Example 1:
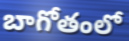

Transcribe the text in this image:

బాగోతంలో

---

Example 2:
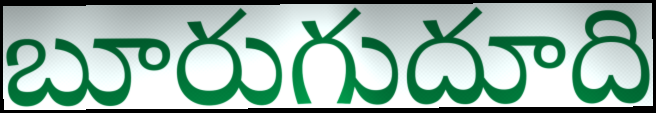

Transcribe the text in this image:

బూరుగుదూది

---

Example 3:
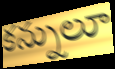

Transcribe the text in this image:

కన్నులూ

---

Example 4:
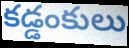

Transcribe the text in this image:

కడ్డంకులు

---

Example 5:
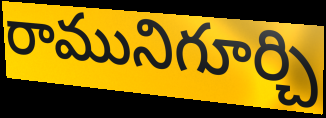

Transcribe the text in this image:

రామునిగూర్చి